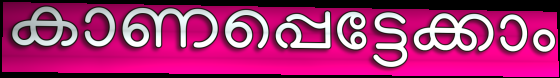
കാണപ്പെട്ടേക്കാം